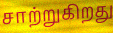
சாற்றுகிறது